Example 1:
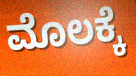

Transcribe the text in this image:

ಮೊಲಕ್ಕೆ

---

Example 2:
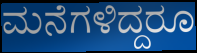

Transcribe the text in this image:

ಮನೆಗಳಿದ್ದರೂ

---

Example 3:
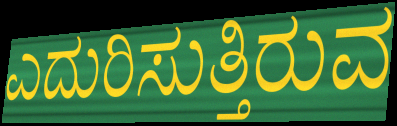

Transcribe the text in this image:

ಎದುರಿಸುತ್ತಿರುವ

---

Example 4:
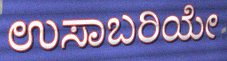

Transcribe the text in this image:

ಉಸಾಬರಿಯೇ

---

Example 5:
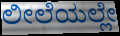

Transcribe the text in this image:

ಲೀಲೆಯಲ್ಲೇ